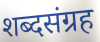
शब्दसंग्रह